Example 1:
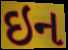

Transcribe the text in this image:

ઇન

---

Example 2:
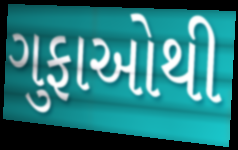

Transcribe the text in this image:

ગુફાઓથી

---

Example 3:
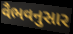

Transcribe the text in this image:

વૈભવનુસાર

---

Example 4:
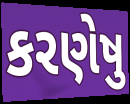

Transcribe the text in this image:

કરણેષુ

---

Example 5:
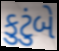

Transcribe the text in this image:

કુટુંબે